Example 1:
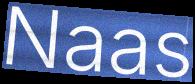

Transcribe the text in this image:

Naas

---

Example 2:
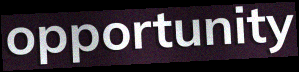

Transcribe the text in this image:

opportunity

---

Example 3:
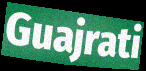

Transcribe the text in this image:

Guajrati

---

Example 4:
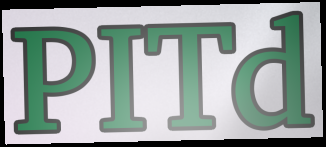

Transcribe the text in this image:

PITd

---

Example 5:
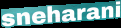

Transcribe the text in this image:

sneharani